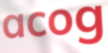
acog